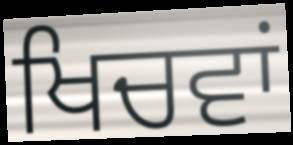
ਖਿਚਵਾਂ